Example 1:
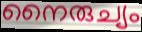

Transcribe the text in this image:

നൈരുച്യം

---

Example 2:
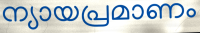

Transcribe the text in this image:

ന്യായപ്രമാണം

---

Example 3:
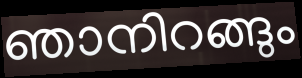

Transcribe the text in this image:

ഞാനിറങ്ങും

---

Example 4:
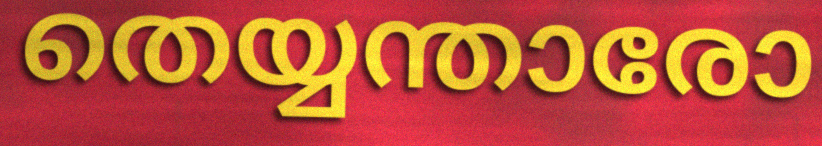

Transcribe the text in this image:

തെയ്യന്താരോ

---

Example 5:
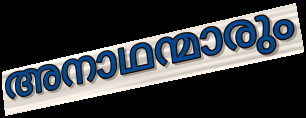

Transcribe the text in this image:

അനാഥന്മാരും